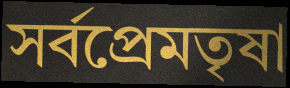
সর্বপ্রেমতৃষা